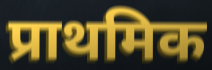
प्राथमिक